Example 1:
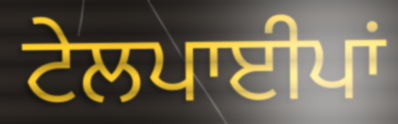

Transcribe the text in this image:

ਟੇਲਪਾਈਪਾਂ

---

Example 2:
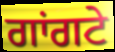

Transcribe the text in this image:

ਗਾਂਗਟੇ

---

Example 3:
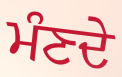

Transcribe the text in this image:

ਮੰਣਦੇ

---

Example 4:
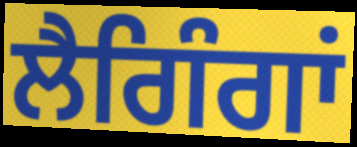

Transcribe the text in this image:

ਲੈਗਿੰਗਾਂ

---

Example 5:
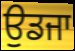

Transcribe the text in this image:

ਉਡਜਾ